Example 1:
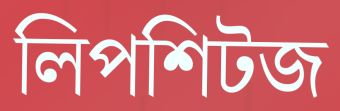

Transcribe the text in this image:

লিপশিটজ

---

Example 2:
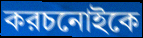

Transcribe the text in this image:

করচনোইকে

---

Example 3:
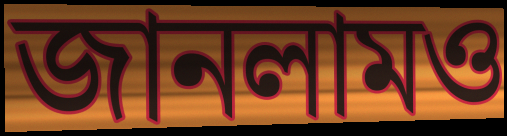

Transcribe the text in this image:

জানলামও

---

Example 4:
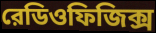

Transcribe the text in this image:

রেডিওফিজিক্স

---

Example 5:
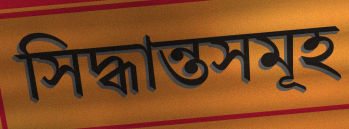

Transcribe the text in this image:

সিদ্ধান্তসমূহ